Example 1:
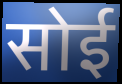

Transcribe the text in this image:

सोई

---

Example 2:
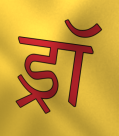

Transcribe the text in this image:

ड्रॉ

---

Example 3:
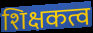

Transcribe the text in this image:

शिक्षकत्व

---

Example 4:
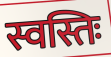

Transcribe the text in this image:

स्वस्तिः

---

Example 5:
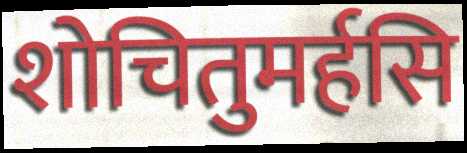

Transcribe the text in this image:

शोचितुमर्हसि